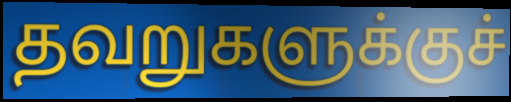
தவறுகளுக்குச்